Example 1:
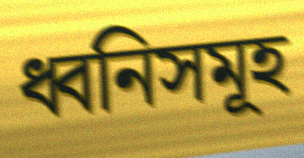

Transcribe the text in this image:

ধ্বনিসমূহ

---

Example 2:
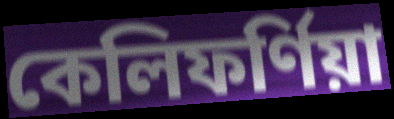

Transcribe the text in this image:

কেলিফৰ্ণিয়া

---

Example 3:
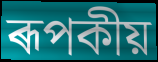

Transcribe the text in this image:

ৰূপকীয়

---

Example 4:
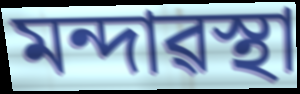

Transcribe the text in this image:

মন্দাৱস্থা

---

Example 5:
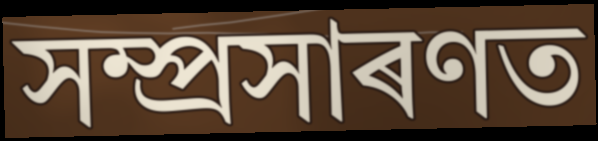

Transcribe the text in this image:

সম্প্ৰসাৰণত